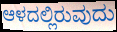
ಆಳದಲ್ಲಿರುವುದು